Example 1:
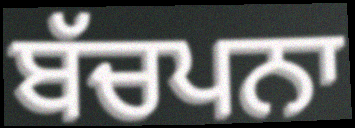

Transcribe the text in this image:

ਬੱਚਪਨਾ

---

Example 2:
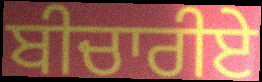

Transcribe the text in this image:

ਬੀਚਾਰੀਏ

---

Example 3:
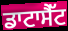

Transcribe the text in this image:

ਡਾਟਾਸੈੱਟ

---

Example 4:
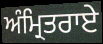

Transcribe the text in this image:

ਅੰਮ੍ਰਿਤਰਾਏ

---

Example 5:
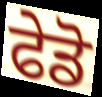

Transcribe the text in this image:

ਫੇਡੋ